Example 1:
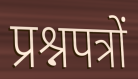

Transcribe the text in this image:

प्रश्नपत्रों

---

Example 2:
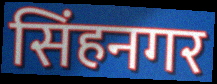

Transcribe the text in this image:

सिंहनगर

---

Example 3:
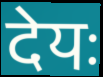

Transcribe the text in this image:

देयः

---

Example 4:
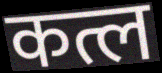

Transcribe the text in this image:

कत्‍ल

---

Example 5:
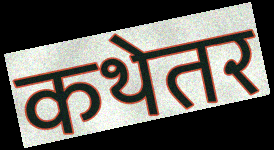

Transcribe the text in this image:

कथेतर